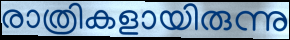
രാത്രികളായിരുന്നു